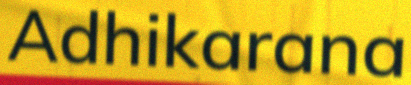
Adhikarana